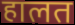
हालत